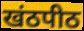
खंठपीठ